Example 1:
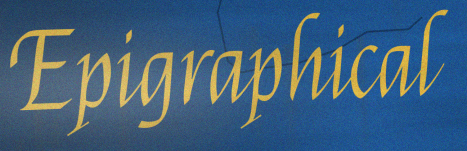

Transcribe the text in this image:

Epigraphical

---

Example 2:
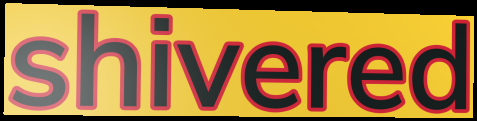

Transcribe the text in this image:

shivered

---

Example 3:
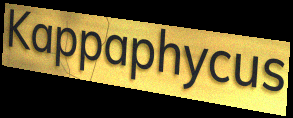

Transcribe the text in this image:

Kappaphycus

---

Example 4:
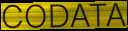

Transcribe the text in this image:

CODATA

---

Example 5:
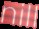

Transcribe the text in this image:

nill